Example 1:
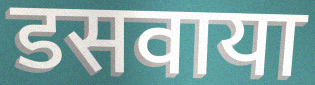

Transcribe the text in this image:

डसवाया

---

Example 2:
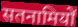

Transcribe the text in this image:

सतनामियों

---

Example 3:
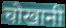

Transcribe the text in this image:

चोखानी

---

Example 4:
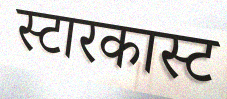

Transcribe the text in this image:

स्टारकास्ट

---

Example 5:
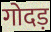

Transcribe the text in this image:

गोदड़